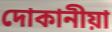
দোকানীয়া